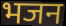
भजन